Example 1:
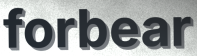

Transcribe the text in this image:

forbear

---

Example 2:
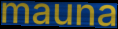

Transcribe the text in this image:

mauna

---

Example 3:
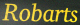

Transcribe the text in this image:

Robarts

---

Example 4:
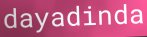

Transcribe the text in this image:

dayadinda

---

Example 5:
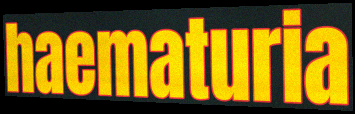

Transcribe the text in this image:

haematuria